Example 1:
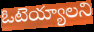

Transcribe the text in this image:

ఓటెయ్యాలని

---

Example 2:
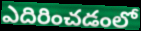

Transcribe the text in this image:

ఎదిరించడంలో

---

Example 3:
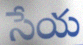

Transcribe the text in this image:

సేయ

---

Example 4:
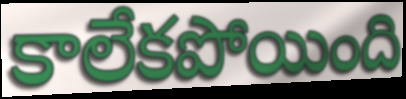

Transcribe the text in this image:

కాలేకపోయింది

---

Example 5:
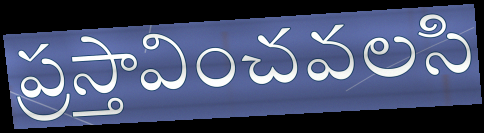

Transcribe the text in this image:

ప్రస్తావించవలసి